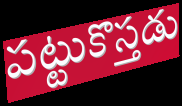
పట్టుకొస్తడు